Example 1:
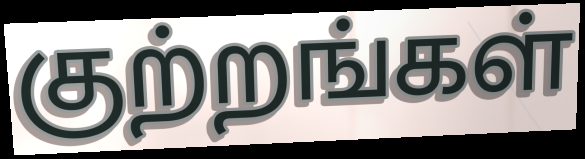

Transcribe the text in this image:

குற்றங்கள்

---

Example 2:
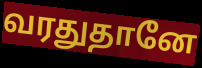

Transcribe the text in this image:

வரதுதானே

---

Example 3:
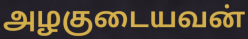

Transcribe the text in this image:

அழகுடையவன்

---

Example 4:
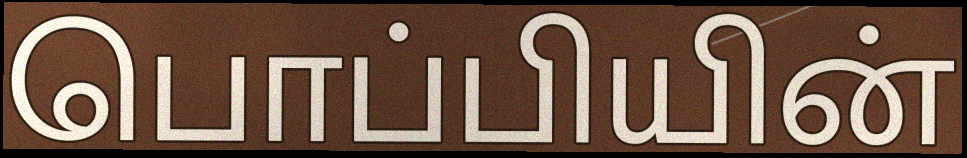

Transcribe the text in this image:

பொப்பியின்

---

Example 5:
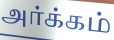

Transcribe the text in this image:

அர்க்கம்